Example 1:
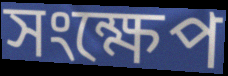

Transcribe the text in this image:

সংক্ষেপ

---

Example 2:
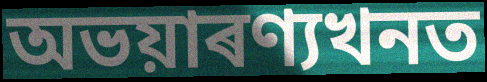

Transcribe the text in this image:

অভয়াৰণ্যখনত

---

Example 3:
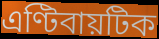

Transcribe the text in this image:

এণ্টিবায়টিক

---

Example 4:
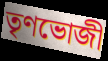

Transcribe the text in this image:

তৃণভোজী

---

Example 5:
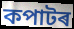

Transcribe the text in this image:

কপাটৰ